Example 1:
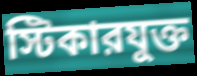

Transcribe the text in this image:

স্টিকারযুক্ত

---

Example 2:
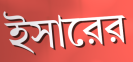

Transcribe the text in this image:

ইসারের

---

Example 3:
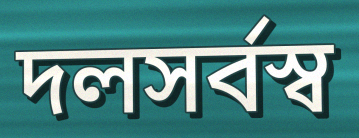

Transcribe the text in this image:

দলসর্বস্ব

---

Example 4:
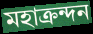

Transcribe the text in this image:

মহাক্রন্দন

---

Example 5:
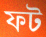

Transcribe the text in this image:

ফট